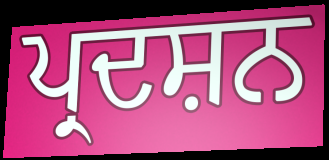
ਪ੍ਰਦਸ਼ਨ